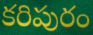
కరిపురం